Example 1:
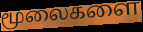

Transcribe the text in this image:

மூலைகளை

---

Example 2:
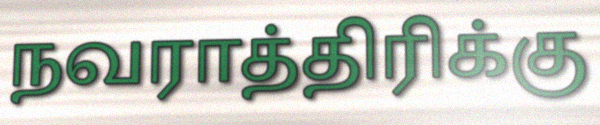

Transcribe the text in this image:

நவராத்திரிக்கு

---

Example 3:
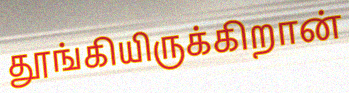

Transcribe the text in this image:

தூங்கியிருக்கிறான்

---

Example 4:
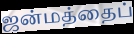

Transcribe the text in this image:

ஜன்மத்தைப்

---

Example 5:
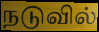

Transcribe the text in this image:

நடுவில்